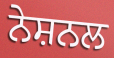
ਨੇਸ਼ਨਲ